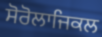
ਸੋਰੋਲਾਜਿਕਲ